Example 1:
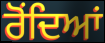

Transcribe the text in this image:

ਰੋਂਦਿਆਂ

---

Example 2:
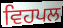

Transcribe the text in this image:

ਵਿਹਪਲ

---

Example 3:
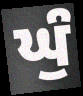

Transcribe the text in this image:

ਘੁੰ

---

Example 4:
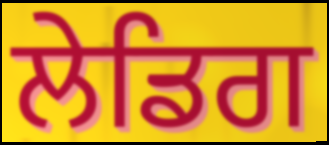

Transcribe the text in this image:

ਲੇਡਿਗ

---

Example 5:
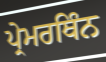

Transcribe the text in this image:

ਪ੍ਰੇਮਰਥਿੰਨ